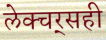
लेक्चर्सही